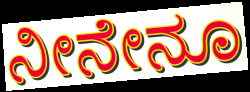
ನೀನೇನೂ